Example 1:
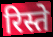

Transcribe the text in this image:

रिस्ते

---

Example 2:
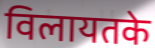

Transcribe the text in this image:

विलायतके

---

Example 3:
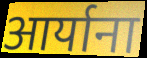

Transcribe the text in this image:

आर्याना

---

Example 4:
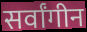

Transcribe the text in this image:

सर्वांगीन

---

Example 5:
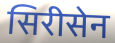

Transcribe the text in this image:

सिरीसेन